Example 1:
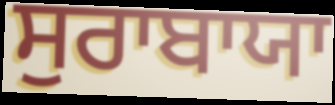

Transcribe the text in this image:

ਸੁਰਾਬਾਯਾ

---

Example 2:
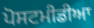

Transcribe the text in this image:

ਪੋਸਟਮੀਡੀਆ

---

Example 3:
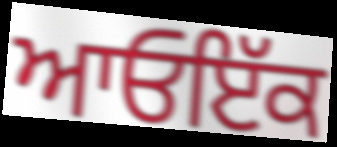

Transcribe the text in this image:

ਆਓਇੱਕ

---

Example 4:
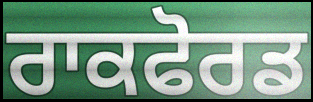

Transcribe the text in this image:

ਰਾਕਫੋਰਡ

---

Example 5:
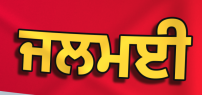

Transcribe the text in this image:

ਜਲਮਈ